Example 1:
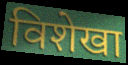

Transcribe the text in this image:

विशेखा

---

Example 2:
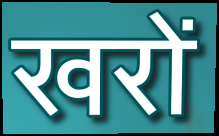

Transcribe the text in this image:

खरों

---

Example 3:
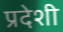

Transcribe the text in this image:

प्रदेशी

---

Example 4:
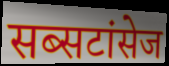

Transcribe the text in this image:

सब्सटांसेज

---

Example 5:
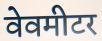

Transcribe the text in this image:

वेवमीटर